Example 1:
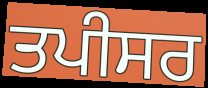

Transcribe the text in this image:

ਤਪੀਸਰ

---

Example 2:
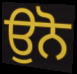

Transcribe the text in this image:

ਉਨੋ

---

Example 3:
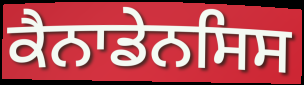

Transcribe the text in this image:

ਕੈਨਾਡੇਨਸਿਸ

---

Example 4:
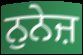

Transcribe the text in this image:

ਨੁਨੇਜ਼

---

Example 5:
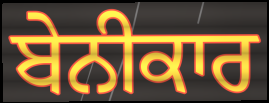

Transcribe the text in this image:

ਬੇਨੀਕਾਰ